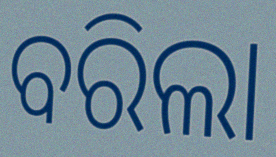
ବରିଲା